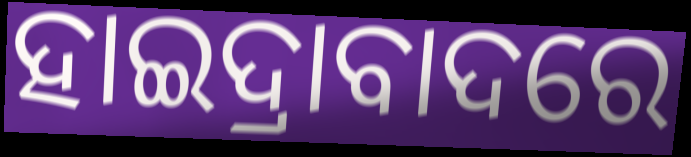
ହାଇଦ୍ରାବାଦରେ